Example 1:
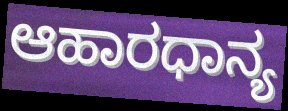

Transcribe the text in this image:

ಆಹಾರಧಾನ್ಯ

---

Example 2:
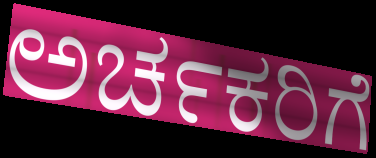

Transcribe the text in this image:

ಅರ್ಚಕರಿಗೆ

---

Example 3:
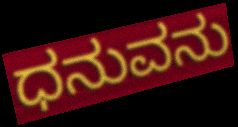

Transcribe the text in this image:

ಧನುವನು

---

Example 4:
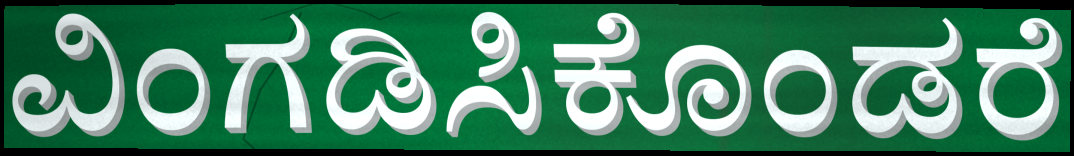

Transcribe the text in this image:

ವಿಂಗಡಿಸಿಕೊಂಡರೆ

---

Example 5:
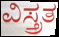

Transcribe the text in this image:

ವಿಸ್ತ್ರತ